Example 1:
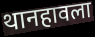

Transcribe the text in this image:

थानहावला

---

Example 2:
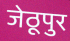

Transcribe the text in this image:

जेठूपुर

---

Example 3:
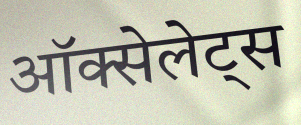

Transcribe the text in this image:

ऑक्सेलेट्स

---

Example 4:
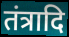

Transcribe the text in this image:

तंत्रादि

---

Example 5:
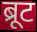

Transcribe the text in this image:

ब्रूट